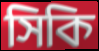
সিকি